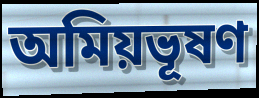
অমিয়ভূষণ